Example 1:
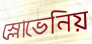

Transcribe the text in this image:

স্লোভেনিয়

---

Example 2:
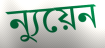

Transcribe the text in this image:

ন্যুয়েন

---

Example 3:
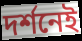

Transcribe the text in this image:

দর্শনেই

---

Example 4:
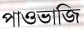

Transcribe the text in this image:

পাওভাজি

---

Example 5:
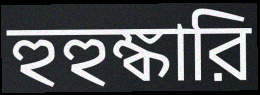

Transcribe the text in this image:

হুহুঙ্কারি